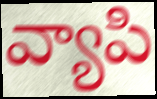
వ్యాపి